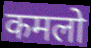
कमलो